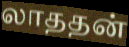
லாததன்